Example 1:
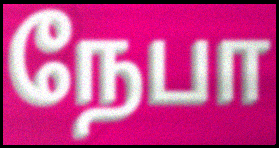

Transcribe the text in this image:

நேபா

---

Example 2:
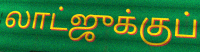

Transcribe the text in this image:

லாட்ஜுக்குப்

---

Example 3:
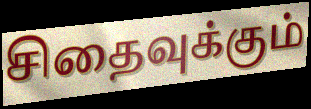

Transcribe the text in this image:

சிதைவுக்கும்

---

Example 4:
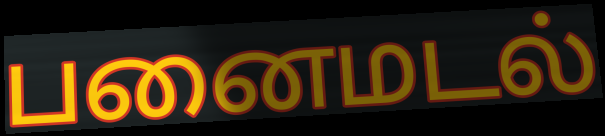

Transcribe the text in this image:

பனைமடல்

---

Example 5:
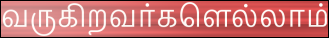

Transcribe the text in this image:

வருகிறவர்களெல்லாம்